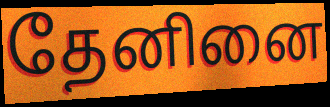
தேனினை